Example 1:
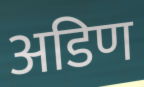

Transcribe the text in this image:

अडिण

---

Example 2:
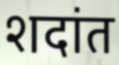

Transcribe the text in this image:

शदांत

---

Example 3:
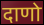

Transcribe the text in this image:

दाणो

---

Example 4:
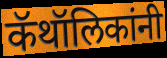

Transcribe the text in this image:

कॅथॉलिकांनी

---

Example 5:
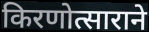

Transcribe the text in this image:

किरणोत्साराने